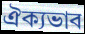
ঐক্যভাব